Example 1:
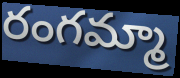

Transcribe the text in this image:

రంగమ్మా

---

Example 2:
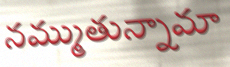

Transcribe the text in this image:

నమ్ముతున్నామా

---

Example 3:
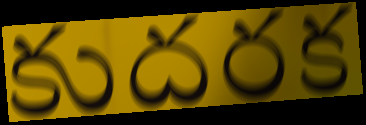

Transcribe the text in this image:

కుదరక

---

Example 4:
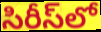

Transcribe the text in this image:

సిరీస్‌లో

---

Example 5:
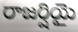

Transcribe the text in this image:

రాజర్షియై